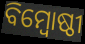
ବିମ୍ବୋଷ୍ଠୀ